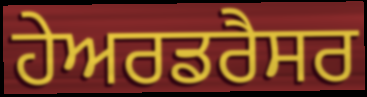
ਹੇਅਰਡਰੈਸਰ